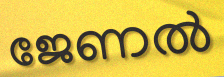
ജേണൽ